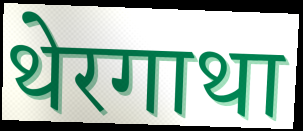
थेरगाथा